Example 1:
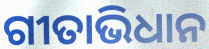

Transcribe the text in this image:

ଗୀତାଭିଧାନ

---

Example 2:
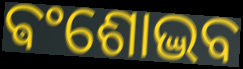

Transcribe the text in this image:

ଵଂଶୋଦ୍ଭବ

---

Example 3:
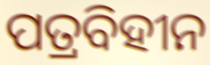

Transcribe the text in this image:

ପତ୍ରବିହୀନ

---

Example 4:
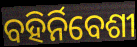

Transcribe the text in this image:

ବହିର୍ନିବେଶୀ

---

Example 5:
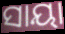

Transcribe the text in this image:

ସାୟା